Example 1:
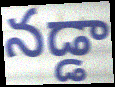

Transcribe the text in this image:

నడ్డా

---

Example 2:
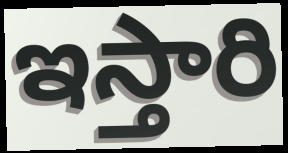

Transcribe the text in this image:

ఇస్తారి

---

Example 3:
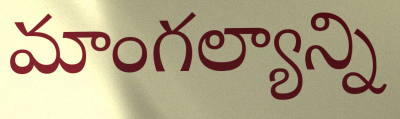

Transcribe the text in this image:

మాంగల్యాన్ని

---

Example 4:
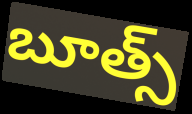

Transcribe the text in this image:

బూత్స్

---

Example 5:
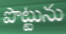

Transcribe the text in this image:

పొట్టును